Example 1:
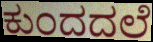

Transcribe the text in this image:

ಕುಂದದಲೆ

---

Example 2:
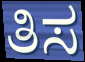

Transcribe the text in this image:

ತಿಸ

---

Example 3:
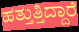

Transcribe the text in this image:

ಹತ್ತುತ್ತಿದ್ದಾರೆ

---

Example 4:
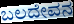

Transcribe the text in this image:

ಬಲದೇವನ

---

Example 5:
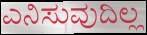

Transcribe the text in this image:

ಎನಿಸುವುದಿಲ್ಲ